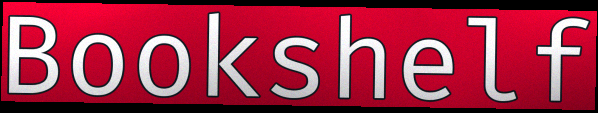
Bookshelf